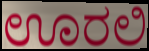
ಊರಲಿ